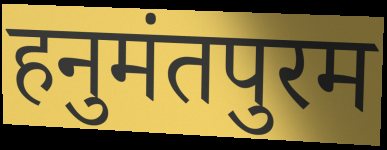
हनुमंतपुरम